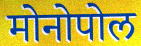
मोनोपोल